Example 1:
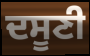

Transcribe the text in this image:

ਦਸੂਣੀ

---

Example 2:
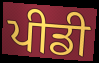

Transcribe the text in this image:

ਪੀਡੀ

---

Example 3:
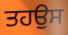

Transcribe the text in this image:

ਤਹਉਸ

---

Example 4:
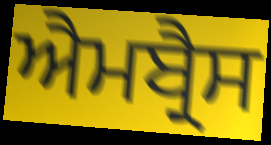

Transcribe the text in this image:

ਐਮਬ੍ਰੈਸ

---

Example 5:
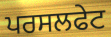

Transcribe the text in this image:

ਪਰਸਲਫੇਟ